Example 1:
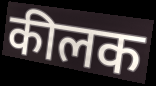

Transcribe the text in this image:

कीलक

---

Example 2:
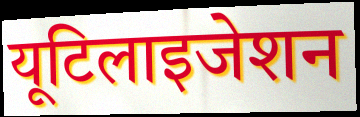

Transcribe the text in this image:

यूटिलाइजेशन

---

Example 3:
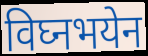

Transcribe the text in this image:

विघ्नभयेन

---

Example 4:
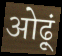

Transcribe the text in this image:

ओढ़ूं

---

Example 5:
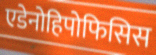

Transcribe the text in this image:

एडेनोहिपोफिसिस